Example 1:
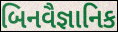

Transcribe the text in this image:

બિનવૈજ્ઞાનિક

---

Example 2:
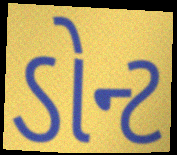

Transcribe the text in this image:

ડોન્ટ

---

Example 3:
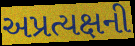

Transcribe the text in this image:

અપ્રત્યક્ષની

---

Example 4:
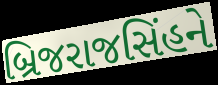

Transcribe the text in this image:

બ્રિજરાજસિંહને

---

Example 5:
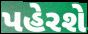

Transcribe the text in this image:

પહેરશે